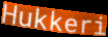
Hukkeri